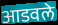
आडवले